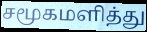
சமூகமளித்து